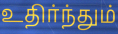
உதிர்ந்தும்